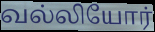
வல்லியோர்